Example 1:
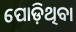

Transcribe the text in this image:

ପୋଡ଼ିଥିବା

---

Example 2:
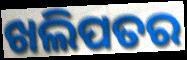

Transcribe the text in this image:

ଖଲିପତର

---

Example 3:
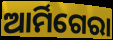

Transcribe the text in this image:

ଆର୍ମିଗେରା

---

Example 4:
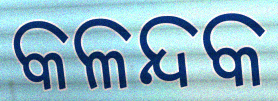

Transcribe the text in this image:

କଳନ୍ଦକ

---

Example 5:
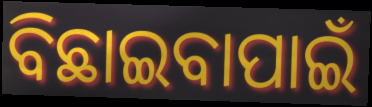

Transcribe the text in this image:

ବିଛାଇବାପାଇଁ